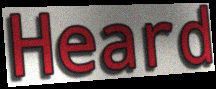
Heard